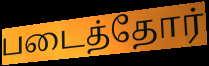
படைத்தோர்